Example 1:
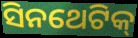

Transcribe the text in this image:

ସିନଥେଟିକ୍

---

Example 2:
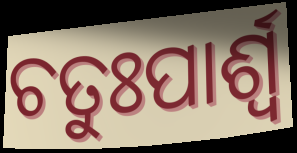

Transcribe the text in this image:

ଚତୁଃପାର୍ଶ୍ବ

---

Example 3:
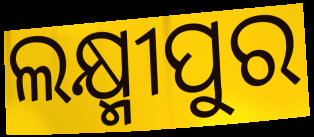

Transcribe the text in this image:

ଲକ୍ଷ୍ମୀପୁର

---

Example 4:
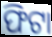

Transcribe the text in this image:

ଫିଟା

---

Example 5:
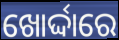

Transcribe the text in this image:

ଖୋର୍ଦ୍ଦାରେ